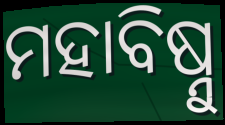
ମହାବିଷ୍ନୁ